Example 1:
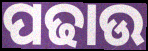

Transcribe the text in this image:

ପଢାଉ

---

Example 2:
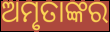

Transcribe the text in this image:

ଅମୃତାଙ୍କର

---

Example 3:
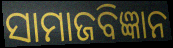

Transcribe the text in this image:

ସାମାଜବିଜ୍ଞାନ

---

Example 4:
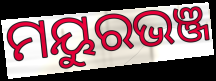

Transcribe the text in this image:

ମୟୁରଭଞ୍ଜ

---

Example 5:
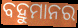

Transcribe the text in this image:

ବହୁମାନର